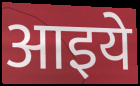
आइये